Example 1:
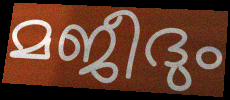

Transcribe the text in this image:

മജീദും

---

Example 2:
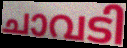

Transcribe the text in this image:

ചാവടി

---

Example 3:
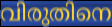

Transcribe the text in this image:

വിരുതിനെ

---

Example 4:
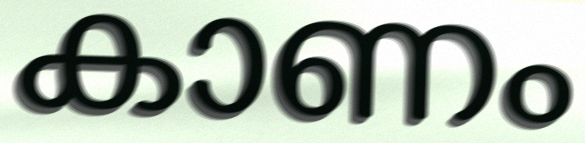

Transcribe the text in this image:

കാണം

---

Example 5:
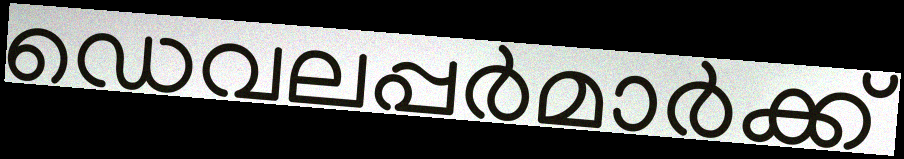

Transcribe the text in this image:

ഡെവലപ്പർമാർക്ക്